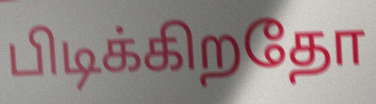
பிடிக்கிறதோ